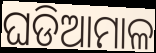
ଘଡିଆମାଳ